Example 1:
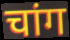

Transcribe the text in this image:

चांग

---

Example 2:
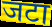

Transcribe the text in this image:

जटा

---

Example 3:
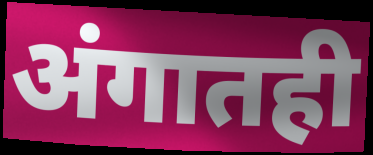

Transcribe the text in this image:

अंगातही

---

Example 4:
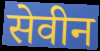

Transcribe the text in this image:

सेवीन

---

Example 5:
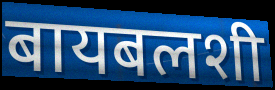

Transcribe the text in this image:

बायबलशी